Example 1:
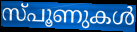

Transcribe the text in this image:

സ്പൂണുകൾ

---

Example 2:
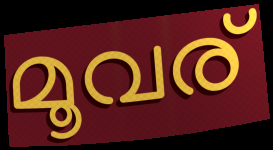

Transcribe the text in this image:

മൂവര്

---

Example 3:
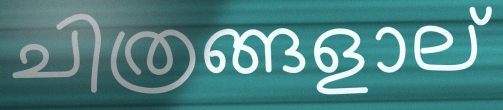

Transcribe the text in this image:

ചിത്രങ്ങളാല്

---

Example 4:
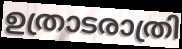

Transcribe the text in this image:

ഉത്രാടരാത്രി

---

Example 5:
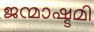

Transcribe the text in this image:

ജന്മാഷ്ടമി